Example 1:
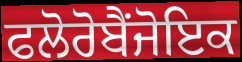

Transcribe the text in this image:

ਫਲੋਰੋਬੈਂਜੋਇਕ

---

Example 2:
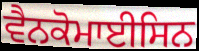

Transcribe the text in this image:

ਵੈਨਕੋਮਾਈਸਿਨ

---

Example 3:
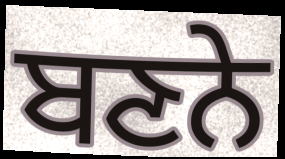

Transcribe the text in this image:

ਬਣਨੇ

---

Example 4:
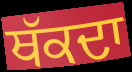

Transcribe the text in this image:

ਥੱਕਦਾ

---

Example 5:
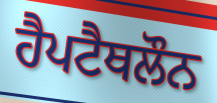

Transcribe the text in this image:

ਹੈਪਟੈਥਲੌਨ